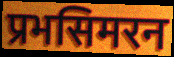
प्रभसिमरन